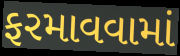
ફરમાવવામાં